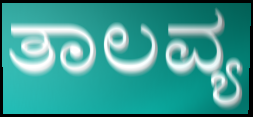
ತಾಲವ್ಯ